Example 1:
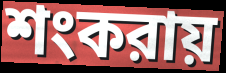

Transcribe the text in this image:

শংকরায়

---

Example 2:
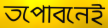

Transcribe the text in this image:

তপোবনেই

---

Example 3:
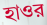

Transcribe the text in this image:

হাওর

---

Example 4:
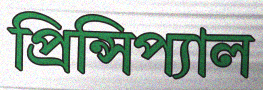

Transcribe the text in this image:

প্রিন্সিপ্যাল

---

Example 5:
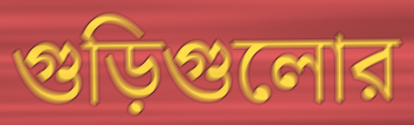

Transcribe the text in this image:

গুড়িগুলোর